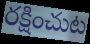
రక్షించుట